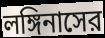
লঙ্গিনাসের